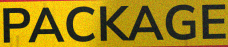
PACKAGE